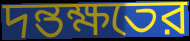
দন্তক্ষতের